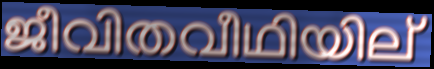
ജീവിതവീഥിയില്